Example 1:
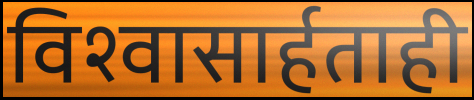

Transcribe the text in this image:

विश्वासार्हताही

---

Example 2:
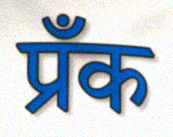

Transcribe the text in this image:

प्रँक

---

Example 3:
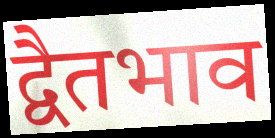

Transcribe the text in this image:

द्वैतभाव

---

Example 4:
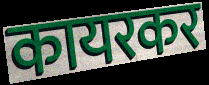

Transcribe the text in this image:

कायरकर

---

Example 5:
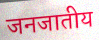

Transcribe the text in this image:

जनजातीय